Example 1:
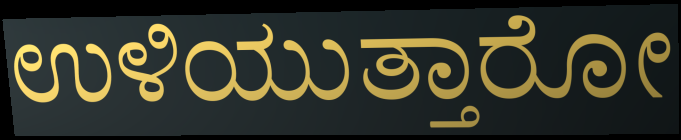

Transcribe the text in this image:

ಉಳಿಯುತ್ತಾರೋ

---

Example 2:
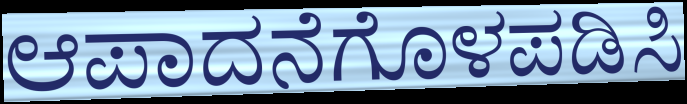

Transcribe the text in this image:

ಆಪಾದನೆಗೊಳಪಡಿಸಿ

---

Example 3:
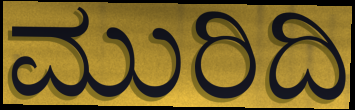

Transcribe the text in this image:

ಮುರಿದಿ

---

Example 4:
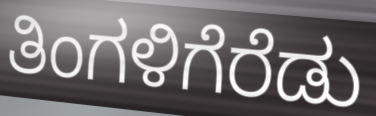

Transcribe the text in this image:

ತಿಂಗಳಿಗೆರೆಡು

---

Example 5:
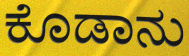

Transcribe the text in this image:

ಕೊಡಾನು